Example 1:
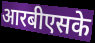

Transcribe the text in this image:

आरबीएसके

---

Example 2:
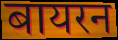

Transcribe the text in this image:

बायरन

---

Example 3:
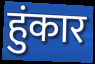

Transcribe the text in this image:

हुंकार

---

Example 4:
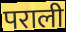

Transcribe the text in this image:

पराली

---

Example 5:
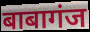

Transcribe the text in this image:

बाबागंज